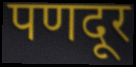
पणदूर